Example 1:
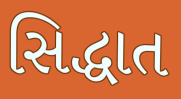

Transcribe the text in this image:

સિદ્ધાત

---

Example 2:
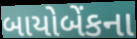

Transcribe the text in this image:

બાયોબેંકના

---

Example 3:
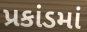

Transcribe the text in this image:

પ્રકાંડમાં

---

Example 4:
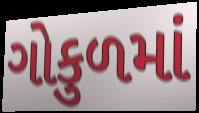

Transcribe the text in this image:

ગોકુળમાં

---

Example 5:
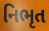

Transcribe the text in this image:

નિભૃત